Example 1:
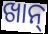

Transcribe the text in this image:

ଖାନ୍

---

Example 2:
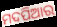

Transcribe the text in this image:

ମଦପିଆର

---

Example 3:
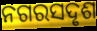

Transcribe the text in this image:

ନଗରସଦୃଶ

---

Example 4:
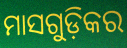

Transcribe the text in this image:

ମାସଗୁଡ଼ିକର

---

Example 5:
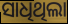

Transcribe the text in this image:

ସାଧିଥିଲା